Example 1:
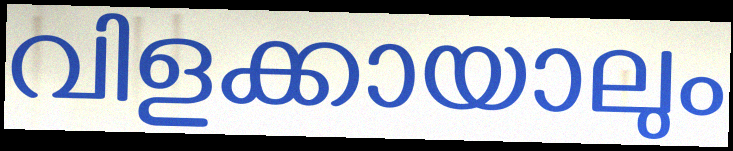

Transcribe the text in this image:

വിളക്കായാലും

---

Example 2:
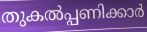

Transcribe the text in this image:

തുകൽപ്പണിക്കാർ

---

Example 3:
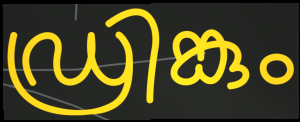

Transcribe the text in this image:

ഡ്രിങ്കും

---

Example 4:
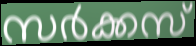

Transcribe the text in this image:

സർക്കസ്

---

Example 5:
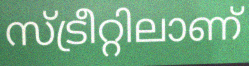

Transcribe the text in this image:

സ്ട്രീറ്റിലാണ്